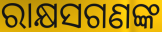
ରାକ୍ଷସଗଣଙ୍କ